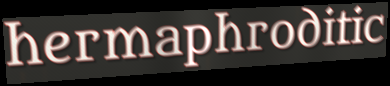
hermaphroditic